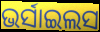
ଭର୍ସାଇଲସ